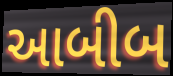
આબીબ